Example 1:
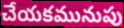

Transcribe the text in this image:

చేయకమునుపు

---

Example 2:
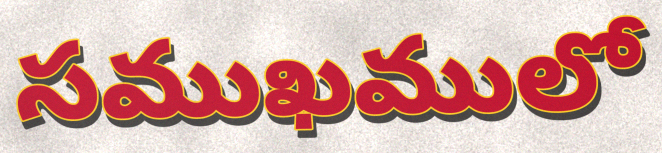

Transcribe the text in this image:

సముఖములో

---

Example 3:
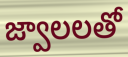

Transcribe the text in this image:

జ్వాలలతో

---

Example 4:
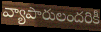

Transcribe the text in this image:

వ్యాపారులందరికీ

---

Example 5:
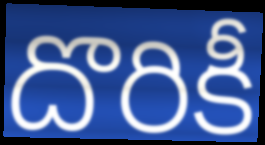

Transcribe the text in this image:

దొరికీ